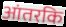
आंतरकि